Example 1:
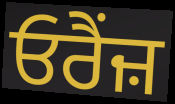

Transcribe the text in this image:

ਓਰੈਂਜ਼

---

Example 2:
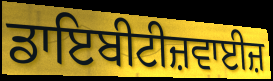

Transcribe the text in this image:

ਡਾਇਬੀਟੀਜ਼ਵਾਈਜ਼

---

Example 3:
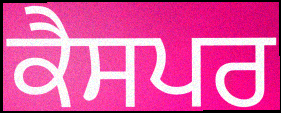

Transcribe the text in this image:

ਕੈਸਪਰ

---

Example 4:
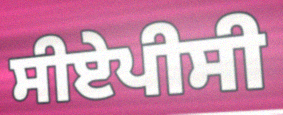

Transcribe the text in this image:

ਸੀਏਪੀਸੀ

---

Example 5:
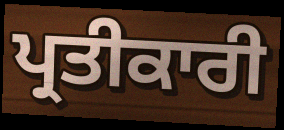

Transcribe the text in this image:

ਪ੍ਰਤੀਕਾਰੀ